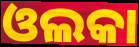
ଓଲକା